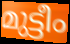
മുട്ടീം